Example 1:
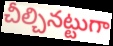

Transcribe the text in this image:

చీల్చినట్టుగా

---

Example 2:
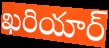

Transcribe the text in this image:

ఖరియార్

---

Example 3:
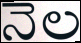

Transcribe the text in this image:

నెల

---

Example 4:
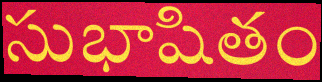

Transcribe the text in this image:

సుభాషితం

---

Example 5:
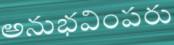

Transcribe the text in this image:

అనుభవింపరు